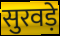
सुरवड़े